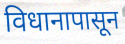
विधानापासून